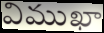
విముఖా